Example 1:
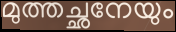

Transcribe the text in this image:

മുത്തച്ഛനേയും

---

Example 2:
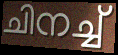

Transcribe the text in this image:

ചിനച്ച്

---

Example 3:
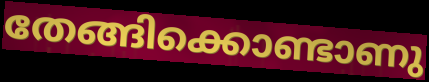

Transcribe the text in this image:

തേങ്ങിക്കൊണ്ടാണു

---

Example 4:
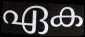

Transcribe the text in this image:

ഏക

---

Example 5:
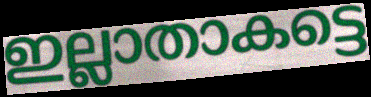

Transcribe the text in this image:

ഇല്ലാതാകട്ടെ